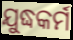
ଯୁଦ୍ଧକର୍ମ